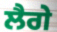
ਲੈਗੇ